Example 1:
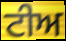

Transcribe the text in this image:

ਟੀਅ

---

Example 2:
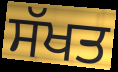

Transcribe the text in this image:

ਸੱਖਤ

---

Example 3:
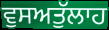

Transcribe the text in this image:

ਵੁਸਅਤੁੱਲਾਹ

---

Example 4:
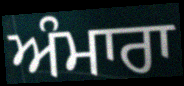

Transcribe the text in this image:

ਅੰਮਾਰਾ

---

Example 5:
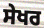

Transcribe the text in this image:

ਸੇਖਰ